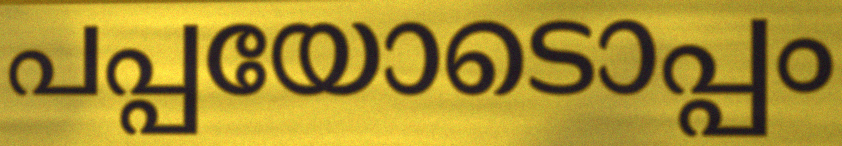
പപ്പയോടൊപ്പം